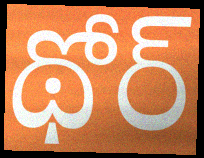
థోర్